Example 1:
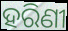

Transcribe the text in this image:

ହରିଣୀ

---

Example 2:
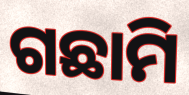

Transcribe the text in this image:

ଗଛାମି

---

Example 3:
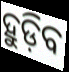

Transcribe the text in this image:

ହୁଡ଼ିବ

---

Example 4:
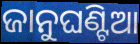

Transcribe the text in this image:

ଜାନୁଘଣ୍ଟିଆ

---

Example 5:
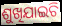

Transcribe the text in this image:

ଶୁଖିଯାଇଚି